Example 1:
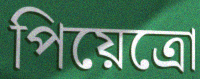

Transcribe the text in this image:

পিয়েত্রো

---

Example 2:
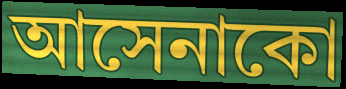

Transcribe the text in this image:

আসেনাকো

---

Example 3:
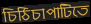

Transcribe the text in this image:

চিঠিচাপাটিতে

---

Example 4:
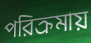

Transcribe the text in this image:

পরিক্রমায়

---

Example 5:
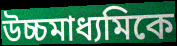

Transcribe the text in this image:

উচ্চমাধ্যমিকে